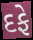
દફે